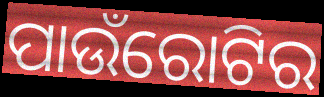
ପାଉଁରୋଟିର